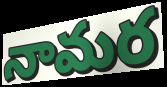
నామర